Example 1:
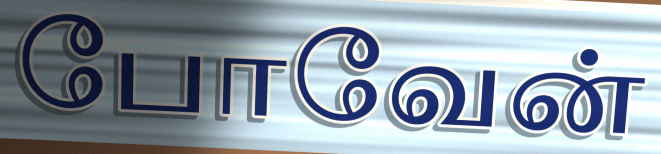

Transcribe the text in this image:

போவேன்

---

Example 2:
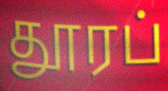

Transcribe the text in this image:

தூரப்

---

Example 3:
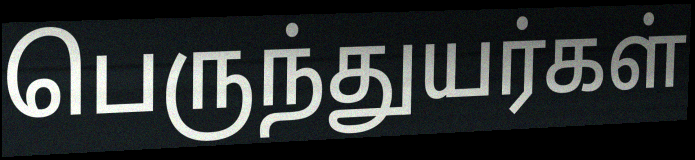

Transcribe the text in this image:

பெருந்துயர்கள்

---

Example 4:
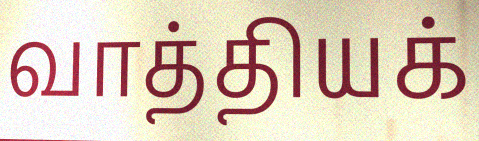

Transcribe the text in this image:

வாத்தியக்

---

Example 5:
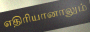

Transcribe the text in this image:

எதிரியானாலும்